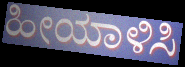
ಹೀಯಾಳಿಸಿ